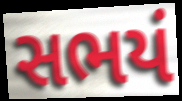
સભયં